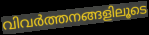
വിവർത്തനങ്ങളിലൂടെ